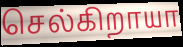
செல்கிறாயா